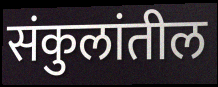
संकुलांतील